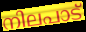
നിലപാട്